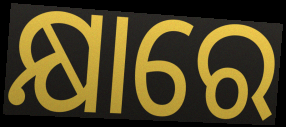
କ୍ଷାରେ